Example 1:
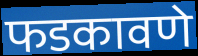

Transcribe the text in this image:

फडकावणे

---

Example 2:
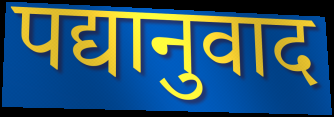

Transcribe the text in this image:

पद्यानुवाद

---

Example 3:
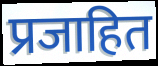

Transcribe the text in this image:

प्रजाहित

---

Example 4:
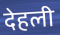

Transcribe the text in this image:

देहली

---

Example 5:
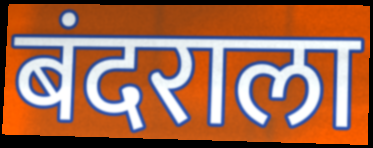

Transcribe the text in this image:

बंदराला